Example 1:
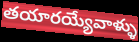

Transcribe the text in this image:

తయారయ్యేవాళ్ళు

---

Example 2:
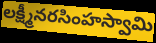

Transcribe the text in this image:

లక్ష్మీనరసింహస్వామి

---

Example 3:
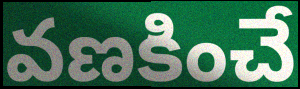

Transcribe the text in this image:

వణకించే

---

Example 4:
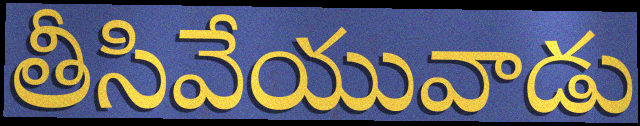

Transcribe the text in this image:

తీసివేయువాడు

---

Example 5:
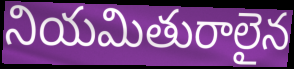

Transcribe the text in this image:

నియమితురాలైన